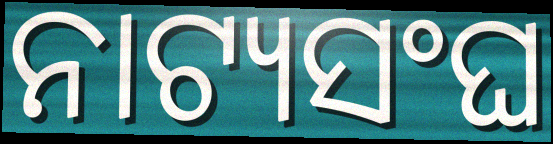
ନାଟ୍ୟସଂଘ